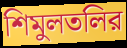
শিমুলতলির